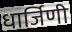
धार्जिणी